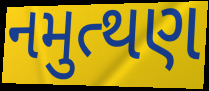
નમુત્થણ